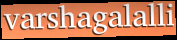
varshagalalli